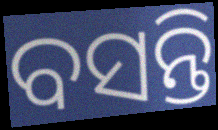
ବସନ୍ତି